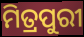
ମିତ୍ରପୁରୀ